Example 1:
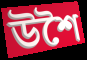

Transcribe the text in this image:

উশৈ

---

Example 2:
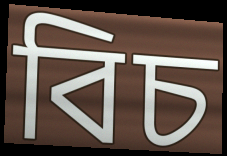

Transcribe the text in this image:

বিচ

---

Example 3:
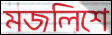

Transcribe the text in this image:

মজলিশে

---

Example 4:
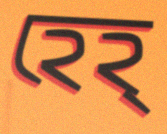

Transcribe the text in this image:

হেহ্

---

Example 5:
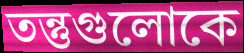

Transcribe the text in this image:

তন্তুগুলোকে